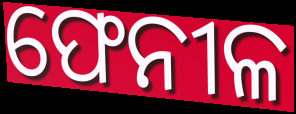
ଫେନୀଳ